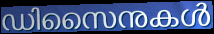
ഡിസൈനുകൾ